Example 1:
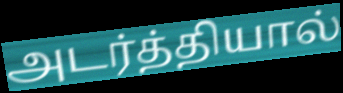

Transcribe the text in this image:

அடர்த்தியால்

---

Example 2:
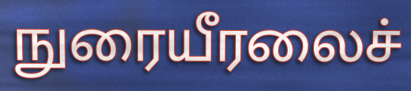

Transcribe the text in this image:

நுரையீரலைச்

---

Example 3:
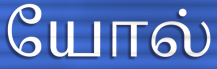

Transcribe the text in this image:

யோல்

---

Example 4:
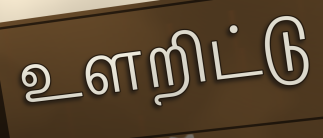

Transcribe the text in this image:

உளறிட்டு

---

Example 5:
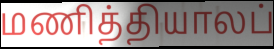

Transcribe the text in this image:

மணித்தியாலப்